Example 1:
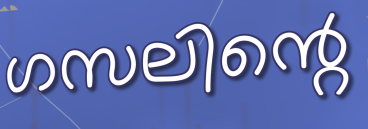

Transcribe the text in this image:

ഗസലിന്റെ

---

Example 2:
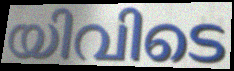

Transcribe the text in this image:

യിവിടെ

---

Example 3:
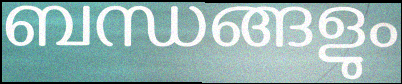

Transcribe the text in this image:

ബന്ധങ്ങളും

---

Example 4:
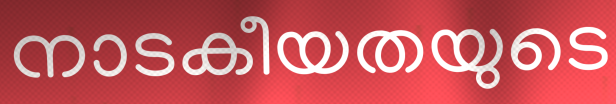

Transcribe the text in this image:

നാടകീയതയുടെ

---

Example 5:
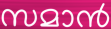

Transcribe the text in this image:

സമാൻ